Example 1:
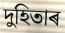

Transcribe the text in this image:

দুহিতাৰ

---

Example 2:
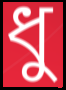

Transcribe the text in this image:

ধু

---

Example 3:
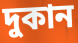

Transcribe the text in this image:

দুকান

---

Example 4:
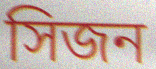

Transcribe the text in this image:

সিজন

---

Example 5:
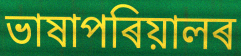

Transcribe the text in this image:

ভাষাপৰিয়ালৰ